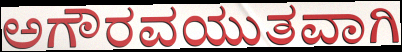
ಅಗೌರವಯುತವಾಗಿ